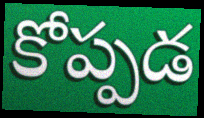
కోప్పడ